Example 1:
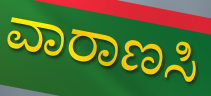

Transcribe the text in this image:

ವಾರಾಣಸಿ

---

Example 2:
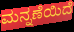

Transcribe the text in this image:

ಮನ್ನಣೆಯಿದೆ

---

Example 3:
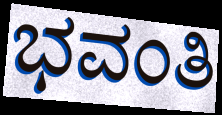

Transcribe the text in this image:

ಭವಂತಿ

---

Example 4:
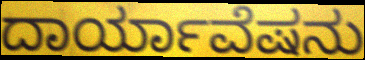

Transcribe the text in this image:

ದಾರ್ಯಾವೆಷನು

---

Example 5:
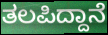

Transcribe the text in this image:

ತಲಪಿದ್ದಾನೆ